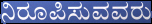
ನಿರೂಪಿಸುವವರು